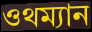
ওথম্যান